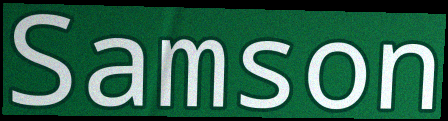
Samson